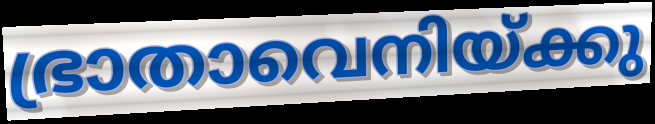
ഭ്രാതാവെനിയ്ക്കു